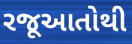
રજૂઆતોથી